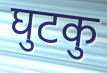
घुटकु